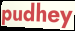
pudhey